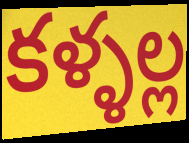
కళ్ళల్ల